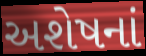
અશેષનાં